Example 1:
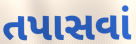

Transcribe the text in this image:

તપાસવાં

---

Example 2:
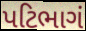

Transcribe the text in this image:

પટિભાગં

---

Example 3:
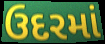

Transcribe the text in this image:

ઉદરમાં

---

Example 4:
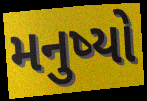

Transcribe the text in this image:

મનુષ્યો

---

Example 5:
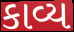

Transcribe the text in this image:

કાવ્ય